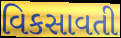
વિકસાવતી